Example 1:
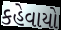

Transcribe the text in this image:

કહેવાયો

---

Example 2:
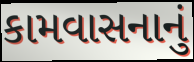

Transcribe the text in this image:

કામવાસનાનું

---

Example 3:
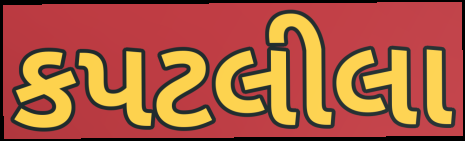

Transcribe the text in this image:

કપટલીલા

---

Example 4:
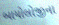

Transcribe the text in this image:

બાયોલોજીના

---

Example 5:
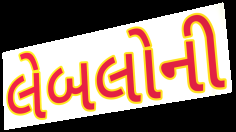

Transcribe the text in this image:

લેબલોની